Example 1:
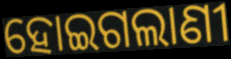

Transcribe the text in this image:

ହୋଇଗଲାଣୀ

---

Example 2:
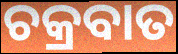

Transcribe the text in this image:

ଚକ୍ରବାତ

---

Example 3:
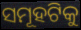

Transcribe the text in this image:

ସମୂହଟିକୁ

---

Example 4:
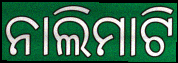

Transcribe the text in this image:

ନାଲିମାଟି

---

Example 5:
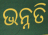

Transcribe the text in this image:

ଭନ୍ନତି